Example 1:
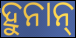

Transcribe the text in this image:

ହୁନାନ୍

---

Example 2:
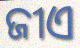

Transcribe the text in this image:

ଜୀଏ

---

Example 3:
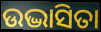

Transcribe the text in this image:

ଉଦ୍ଭାସିତା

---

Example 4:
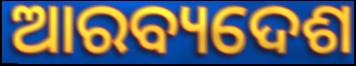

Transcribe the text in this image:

ଆରବ୍ୟଦେଶ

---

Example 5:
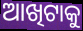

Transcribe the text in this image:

ଆଖିଟାକୁ